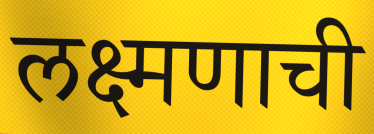
लक्ष्मणाची